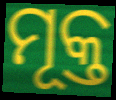
ମୂକ୍ତ